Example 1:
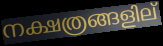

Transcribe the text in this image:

നക്ഷത്രങ്ങളില്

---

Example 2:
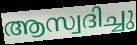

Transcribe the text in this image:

ആസ്വദിച്ചു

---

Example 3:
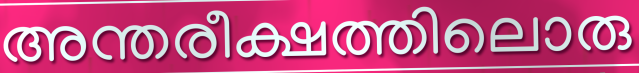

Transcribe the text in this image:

അന്തരീക്ഷത്തിലൊരു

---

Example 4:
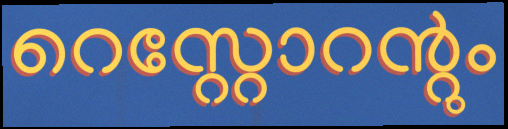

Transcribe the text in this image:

റെസ്റ്റോറന്റും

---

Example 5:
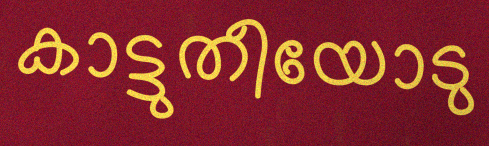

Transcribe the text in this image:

കാട്ടുതീയോടു